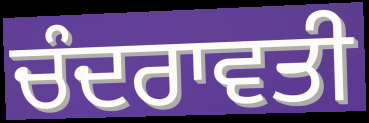
ਚੰਦਰਾਵਤੀ